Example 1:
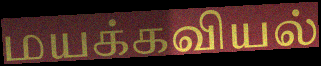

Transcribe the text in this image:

மயக்கவியல்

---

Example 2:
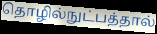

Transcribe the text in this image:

தொழில்நுட்பத்தால்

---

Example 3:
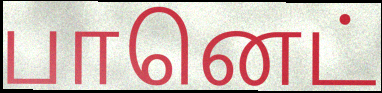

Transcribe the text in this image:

பானெட்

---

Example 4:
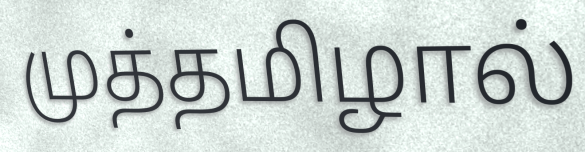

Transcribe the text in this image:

முத்தமிழால்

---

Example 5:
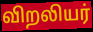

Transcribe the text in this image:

விறலியர்